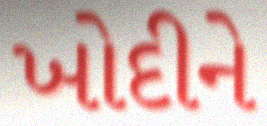
ખોદીને